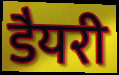
डैयरी